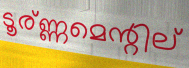
ടൂര്ണ്ണമെന്റില്